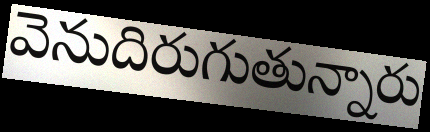
వెనుదిరుగుతున్నారు